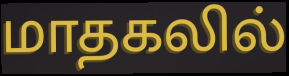
மாதகலில்